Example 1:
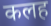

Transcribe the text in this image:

कलह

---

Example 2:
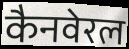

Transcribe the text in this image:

कैनवेरल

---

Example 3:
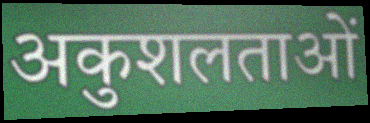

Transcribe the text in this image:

अकुशलताओं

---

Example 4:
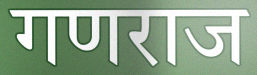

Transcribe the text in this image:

गणराज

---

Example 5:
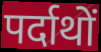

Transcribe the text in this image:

पर्दाथों